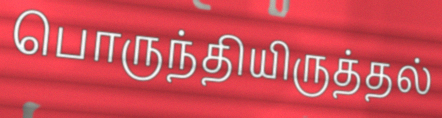
பொருந்தியிருத்தல்